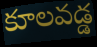
కూలవడ్డ